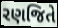
રણજિતે